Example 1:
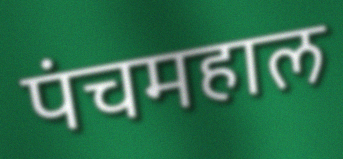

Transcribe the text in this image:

पंचमहाल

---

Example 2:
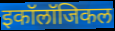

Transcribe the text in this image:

इकॉलॉजिकल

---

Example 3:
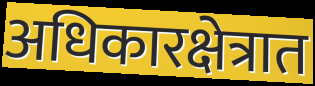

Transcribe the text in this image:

अधिकारक्षेत्रात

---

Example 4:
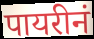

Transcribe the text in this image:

पायरीनं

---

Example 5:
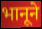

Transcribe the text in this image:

भानूने